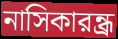
নাসিকারন্ধ্র